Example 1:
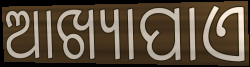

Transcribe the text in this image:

ଆଖ୍ୟାପାଏ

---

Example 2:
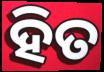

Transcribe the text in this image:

ହିତ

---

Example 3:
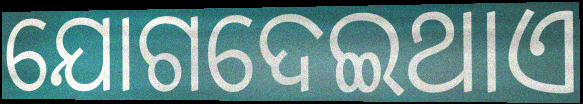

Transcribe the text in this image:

ଯୋଗଦେଇଥାଏ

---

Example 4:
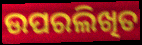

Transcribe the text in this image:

ଉପରଲିଖିତ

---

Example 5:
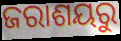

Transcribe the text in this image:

ଜରାଶୟରୁ